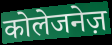
कोलेजनेज़